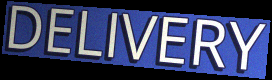
DELIVERY